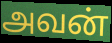
அவன்